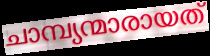
ചാമ്പ്യന്മാരായത്